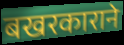
बखरकाराने